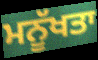
ਮਨੂੱਖਤਾ